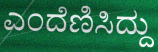
ಎಂದೆಣಿಸಿದ್ದು